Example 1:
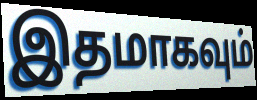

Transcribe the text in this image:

இதமாகவும்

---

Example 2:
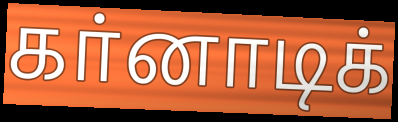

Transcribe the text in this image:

கர்னாடிக்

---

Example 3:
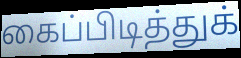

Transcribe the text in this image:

கைப்பிடித்துக்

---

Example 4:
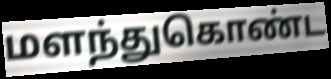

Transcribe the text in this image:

மளந்துகொண்ட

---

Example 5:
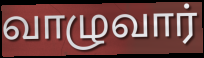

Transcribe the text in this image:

வாழுவார்